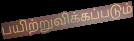
பயிற்றுவிக்கப்படும்